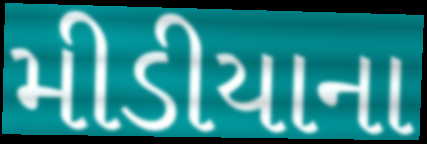
મીડીયાના